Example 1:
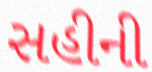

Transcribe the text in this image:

સહીની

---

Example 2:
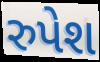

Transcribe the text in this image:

રુપેશ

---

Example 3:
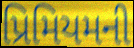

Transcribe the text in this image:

પ્રિમિયમની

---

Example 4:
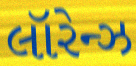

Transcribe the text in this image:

લૉરેન્ઝ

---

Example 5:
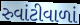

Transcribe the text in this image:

રુવાંટીવાળાં